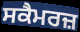
ਸਕੈਮਰਜ਼